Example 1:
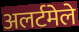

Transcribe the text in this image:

अलर्टमेले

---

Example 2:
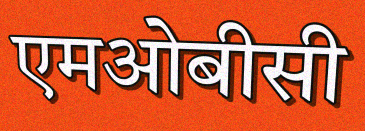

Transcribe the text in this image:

एमओबीसी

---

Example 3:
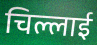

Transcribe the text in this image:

चिल्लाई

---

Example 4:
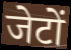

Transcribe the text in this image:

जेटों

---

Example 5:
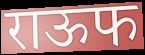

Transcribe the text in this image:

राऊफ